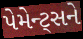
પેમેન્ટ્સને